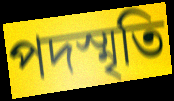
পদস্মৃতি